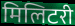
मिलिटरी